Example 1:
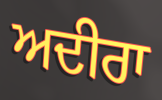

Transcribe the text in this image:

ਅਦੀਰਾ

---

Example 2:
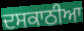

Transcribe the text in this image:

ਦਸਕਾਠੀਆ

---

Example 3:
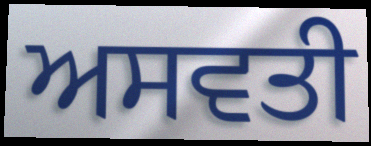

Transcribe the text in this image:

ਅਸਵਤੀ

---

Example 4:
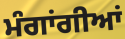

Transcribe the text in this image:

ਮੰਗਾਂਗੀਆਂ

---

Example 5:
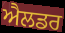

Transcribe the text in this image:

ਐਲਡਰ